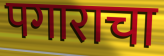
पगाराचा